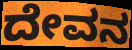
ದೇವನ